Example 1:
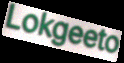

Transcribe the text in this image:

Lokgeeto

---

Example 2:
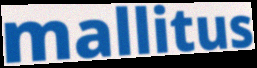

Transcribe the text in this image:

mallitus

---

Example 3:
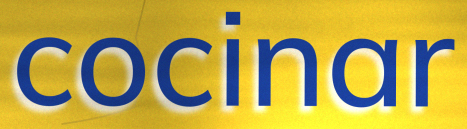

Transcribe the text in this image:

cocinar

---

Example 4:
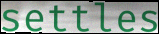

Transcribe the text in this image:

settles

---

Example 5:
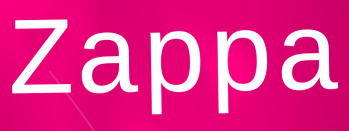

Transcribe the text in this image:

Zappa